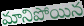
మానిపోయిన